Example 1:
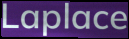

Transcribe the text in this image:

Laplace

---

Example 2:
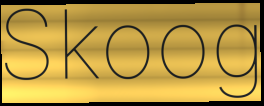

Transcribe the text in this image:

Skoog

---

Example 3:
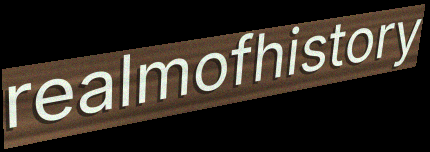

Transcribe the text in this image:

realmofhistory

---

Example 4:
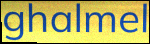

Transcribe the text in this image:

ghalmel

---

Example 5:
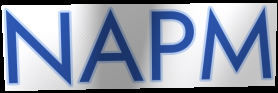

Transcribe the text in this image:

NAPM